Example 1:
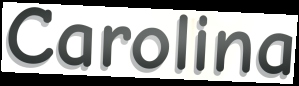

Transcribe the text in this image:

Carolina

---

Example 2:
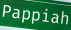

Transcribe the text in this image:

Pappiah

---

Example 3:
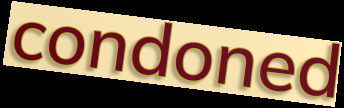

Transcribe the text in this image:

condoned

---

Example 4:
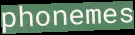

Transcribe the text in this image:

phonemes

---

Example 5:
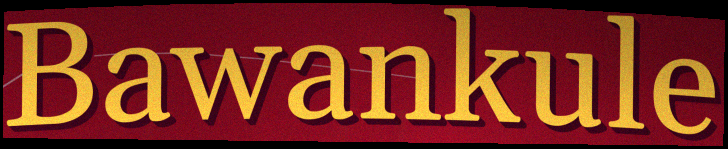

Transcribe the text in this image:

Bawankule